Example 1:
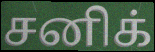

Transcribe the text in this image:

சனிக்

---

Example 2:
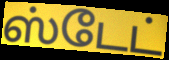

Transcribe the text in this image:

ஸ்டேட்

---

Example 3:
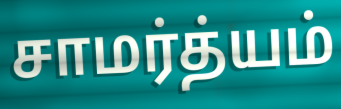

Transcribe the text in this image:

சாமர்த்யம்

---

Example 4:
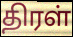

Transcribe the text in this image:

திரள்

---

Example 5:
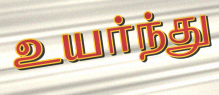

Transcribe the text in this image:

உயர்ந்து